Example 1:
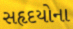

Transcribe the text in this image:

સહૃદયોના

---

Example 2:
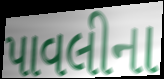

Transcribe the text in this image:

પાવલીના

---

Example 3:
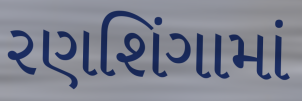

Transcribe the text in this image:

રણશિંગામાં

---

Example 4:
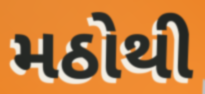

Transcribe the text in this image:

મઠોથી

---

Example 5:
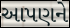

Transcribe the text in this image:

આપણને